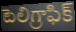
టెలిగ్రాఫిక్